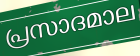
പ്രസാദമാല